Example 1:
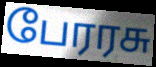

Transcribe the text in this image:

பேரரசு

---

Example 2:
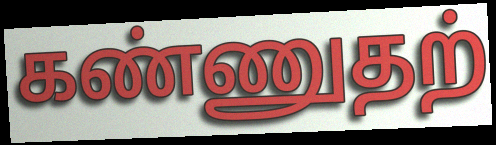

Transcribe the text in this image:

கண்ணுதற்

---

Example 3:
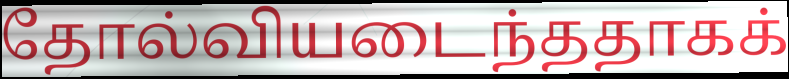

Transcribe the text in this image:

தோல்வியடைந்ததாகக்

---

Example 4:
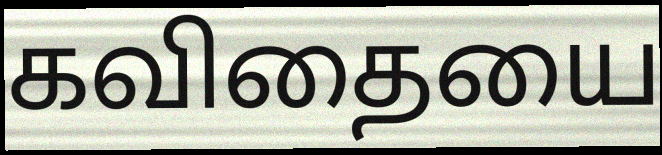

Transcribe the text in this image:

கவிதையை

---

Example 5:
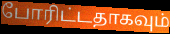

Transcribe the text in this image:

போரிட்டதாகவும்